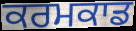
ਕਰਮਕਾਡ